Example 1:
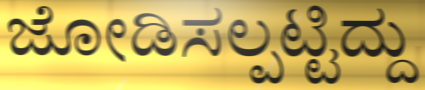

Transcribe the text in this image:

ಜೋಡಿಸಲ್ಪಟ್ಟಿದ್ದು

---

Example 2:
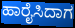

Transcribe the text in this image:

ಹಾರೈಸಿದಾಗ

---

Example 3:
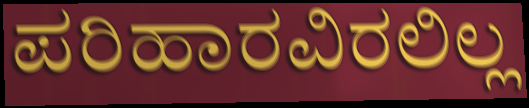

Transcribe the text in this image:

ಪರಿಹಾರವಿರಲಿಲ್ಲ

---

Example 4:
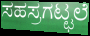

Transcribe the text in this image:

ಸಹಸ್ರಗಟ್ಟಲೆ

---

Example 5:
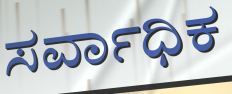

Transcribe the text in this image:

ಸರ್ವಾಧಿಕ